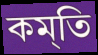
কম্‌তি